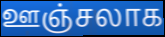
ஊஞ்சலாக